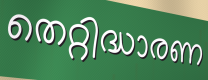
തെറ്റിദ്ധാരണ